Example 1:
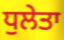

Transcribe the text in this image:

ਧੁਲੇਤਾ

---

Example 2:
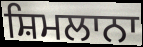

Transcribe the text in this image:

ਸ਼ਿਮਲਾਨਾ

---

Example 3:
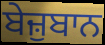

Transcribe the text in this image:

ਬੇਜ਼ੁਬਾਨ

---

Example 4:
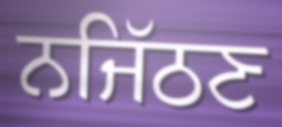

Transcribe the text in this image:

ਨਜਿੱਠਣ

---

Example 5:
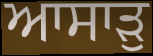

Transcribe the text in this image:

ਆਸਾੜੁ